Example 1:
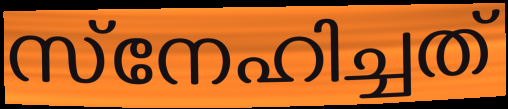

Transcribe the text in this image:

സ്‌നേഹിച്ചത്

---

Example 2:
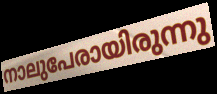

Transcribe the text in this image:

നാലുപേരായിരുന്നു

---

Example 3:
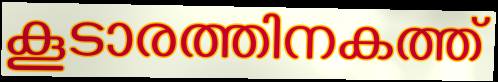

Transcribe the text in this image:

കൂടാരത്തിനകത്ത്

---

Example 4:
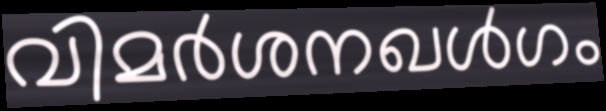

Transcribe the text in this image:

വിമർശനഖൾഗം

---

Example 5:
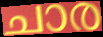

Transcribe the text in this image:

ചാര